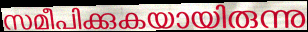
സമീപിക്കുകയായിരുന്നു